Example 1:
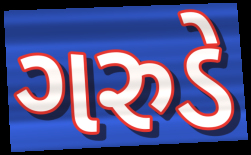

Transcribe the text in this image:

ગરુડે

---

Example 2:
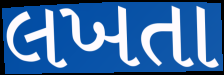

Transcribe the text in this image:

લખતા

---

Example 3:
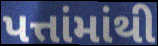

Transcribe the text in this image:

પત્તાંમાંથી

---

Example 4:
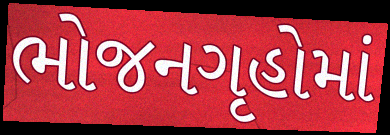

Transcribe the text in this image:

ભોજનગૃહોમાં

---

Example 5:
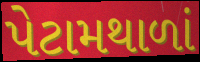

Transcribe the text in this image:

પેટામથાળાં